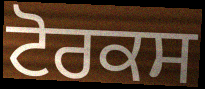
ਟੋਰਕਸ